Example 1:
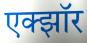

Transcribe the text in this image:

एक्झॉर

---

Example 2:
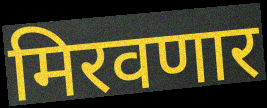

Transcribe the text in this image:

मिरवणार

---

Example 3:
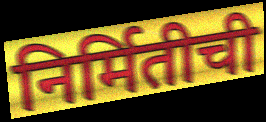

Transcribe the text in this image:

निर्मितीची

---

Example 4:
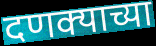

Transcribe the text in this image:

दणक्याच्या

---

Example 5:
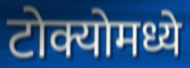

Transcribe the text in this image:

टोक्योमध्ये